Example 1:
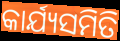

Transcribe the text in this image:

କାର୍ଯ୍ୟସମିତି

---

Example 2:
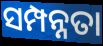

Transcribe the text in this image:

ସମ୍ପନ୍ନତା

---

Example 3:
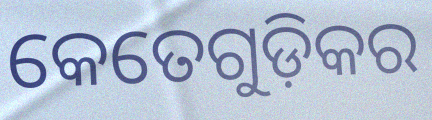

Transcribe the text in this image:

କେତେଗୁଡ଼ିକର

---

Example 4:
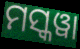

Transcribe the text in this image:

ମସ୍କୱା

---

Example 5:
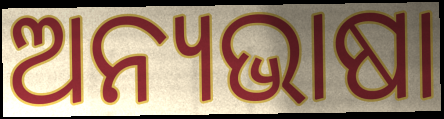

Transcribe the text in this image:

ଅନ୍ୟଭାଷା